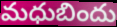
మధుబిందు